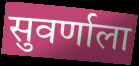
सुवर्णाला